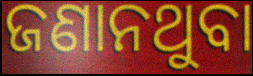
ଜଣାନଥୁବା